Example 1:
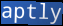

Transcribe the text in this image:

aptly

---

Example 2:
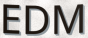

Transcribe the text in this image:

EDM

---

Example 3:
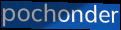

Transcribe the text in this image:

pochonder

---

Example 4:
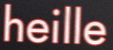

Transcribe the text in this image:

heille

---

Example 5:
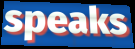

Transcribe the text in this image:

speaks